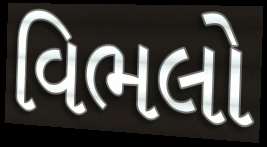
વિભલો